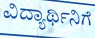
ವಿದ್ಯಾರ್ಥಿನಿಗೆ